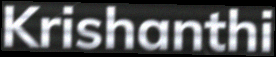
Krishanthi